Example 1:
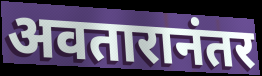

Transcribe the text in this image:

अवतारानंतर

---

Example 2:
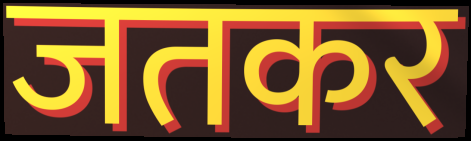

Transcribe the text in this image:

जतकर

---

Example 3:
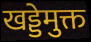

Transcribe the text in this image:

खड्डेमुक्त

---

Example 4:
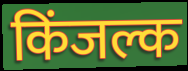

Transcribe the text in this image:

किंजल्क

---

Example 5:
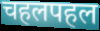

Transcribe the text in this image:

चहलपहल